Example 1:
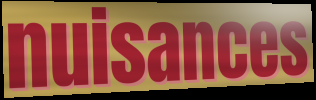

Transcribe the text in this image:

nuisances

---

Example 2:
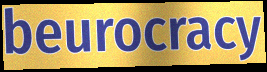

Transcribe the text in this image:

beurocracy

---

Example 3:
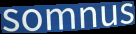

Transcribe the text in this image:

somnus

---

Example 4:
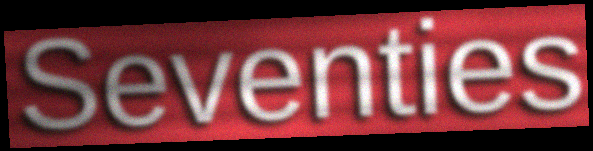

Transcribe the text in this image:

Seventies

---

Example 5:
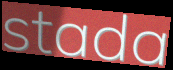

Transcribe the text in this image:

stada